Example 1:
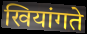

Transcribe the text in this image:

खियांगते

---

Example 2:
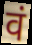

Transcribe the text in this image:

वं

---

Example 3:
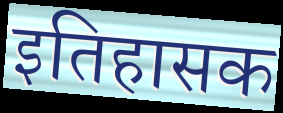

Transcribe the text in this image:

इतिहासक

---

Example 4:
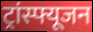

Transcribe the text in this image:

ट्रांस्फ्यूजन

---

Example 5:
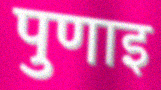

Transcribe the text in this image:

पुणाइ